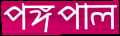
পঙ্গপাল